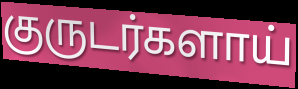
குருடர்களாய்